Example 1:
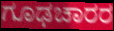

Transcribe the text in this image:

ಗೂಢಚಾರರ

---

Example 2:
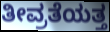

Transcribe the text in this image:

ತೀವ್ರತೆಯತ್ತ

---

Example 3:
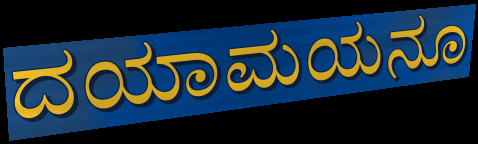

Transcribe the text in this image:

ದಯಾಮಯನೂ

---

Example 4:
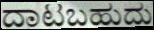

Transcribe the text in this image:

ದಾಟಬಹುದು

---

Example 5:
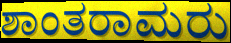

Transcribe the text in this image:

ಶಾಂತರಾಮರು